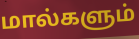
மால்களும்